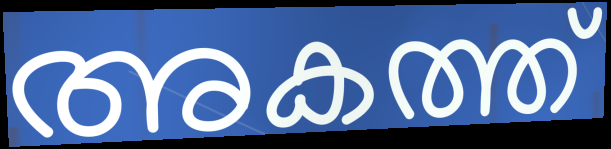
അകത്ത്